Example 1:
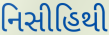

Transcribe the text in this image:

નિસીહિથી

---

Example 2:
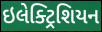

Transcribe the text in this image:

ઇલેક્ટ્રિશિયન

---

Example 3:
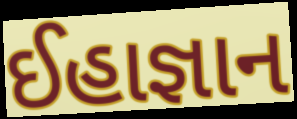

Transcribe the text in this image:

ઈહાજ્ઞાન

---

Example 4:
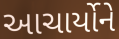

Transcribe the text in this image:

આચાર્યોને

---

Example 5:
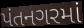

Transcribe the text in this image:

પંતનગરમાં